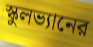
স্কুলভ্যানের